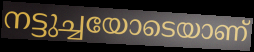
നട്ടുച്ചയോടെയാണ്